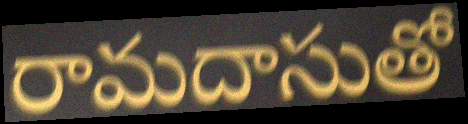
రామదాసుతో